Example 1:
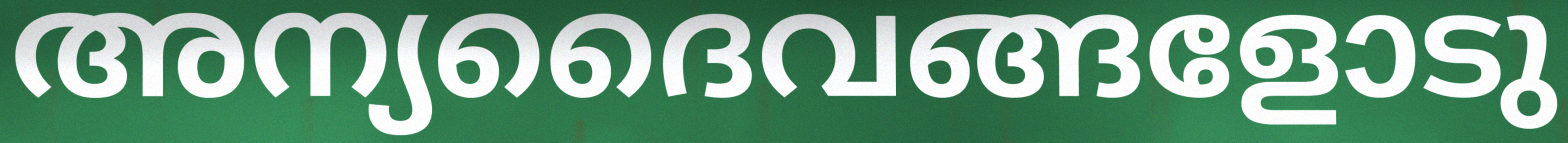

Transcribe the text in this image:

അന്യദൈവങ്ങളോടു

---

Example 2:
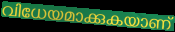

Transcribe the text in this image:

വിധേയമാക്കുകയാണ്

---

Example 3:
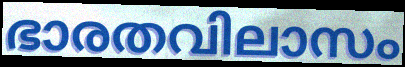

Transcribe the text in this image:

ഭാരതവിലാസം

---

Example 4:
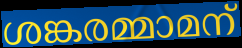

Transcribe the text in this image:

ശങ്കരമ്മാമന്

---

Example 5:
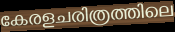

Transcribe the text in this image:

കേരളചരിത്രത്തിലെ